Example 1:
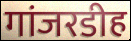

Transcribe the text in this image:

गांजरडीह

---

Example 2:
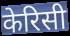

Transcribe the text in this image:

केरिसी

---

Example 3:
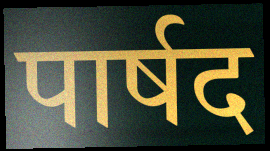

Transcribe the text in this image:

पार्षद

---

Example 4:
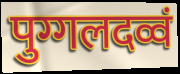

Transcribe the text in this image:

पुग्गलदव्वं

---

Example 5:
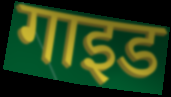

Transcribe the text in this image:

गाइड